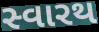
સ્વારથ